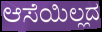
ಆಸೆಯಿಲ್ಲದ